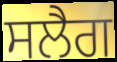
ਸਲੈਗ